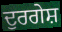
ਦੁਰਗੇਸ਼